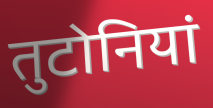
तुटोनियां